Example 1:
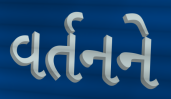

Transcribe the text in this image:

વર્તનને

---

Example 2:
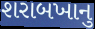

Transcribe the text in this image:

શરાબખાનુ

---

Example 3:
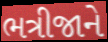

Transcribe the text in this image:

ભત્રીજાને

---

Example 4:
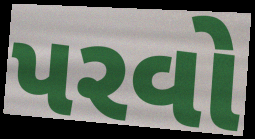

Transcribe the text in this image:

પરવો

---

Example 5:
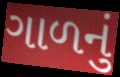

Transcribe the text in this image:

ગાળનું